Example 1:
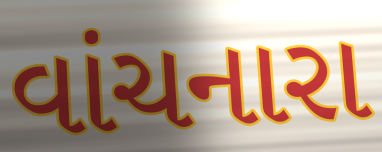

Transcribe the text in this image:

વાંચનારા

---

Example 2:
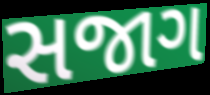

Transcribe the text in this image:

સજાગ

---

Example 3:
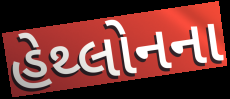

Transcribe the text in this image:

હેથ્લોનના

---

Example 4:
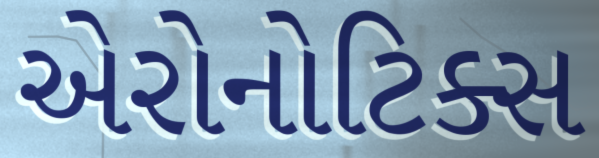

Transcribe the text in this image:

એરોનોટિક્સ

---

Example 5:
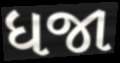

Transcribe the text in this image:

ધજા